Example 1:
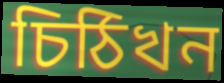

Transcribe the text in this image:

চিঠিখন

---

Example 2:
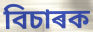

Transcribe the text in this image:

বিচাৰক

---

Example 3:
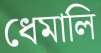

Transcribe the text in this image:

ধেমালি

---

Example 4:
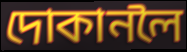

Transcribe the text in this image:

দোকানলৈ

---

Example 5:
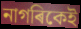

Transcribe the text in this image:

নাগৰিকেই